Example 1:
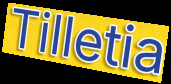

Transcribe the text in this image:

Tilletia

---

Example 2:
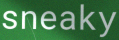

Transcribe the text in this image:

sneaky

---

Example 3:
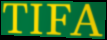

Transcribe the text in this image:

TIFA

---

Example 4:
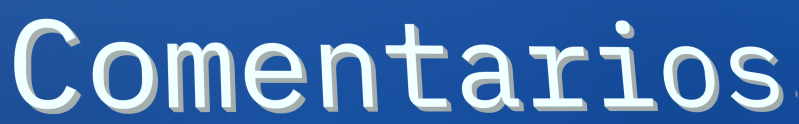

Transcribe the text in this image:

Comentarios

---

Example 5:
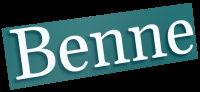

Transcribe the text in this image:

Benne